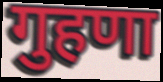
गुहणा